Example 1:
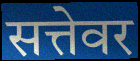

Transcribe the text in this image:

सत्तेवर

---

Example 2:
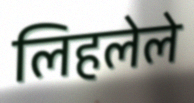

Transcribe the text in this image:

लिहलेले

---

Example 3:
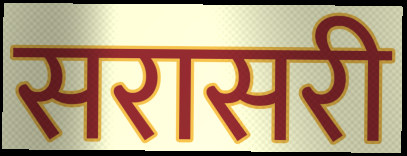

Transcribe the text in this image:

सरासरी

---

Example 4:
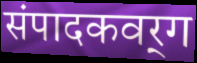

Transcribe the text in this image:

संपादकवर्ग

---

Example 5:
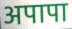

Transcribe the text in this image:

अपापा